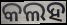
କଲହ